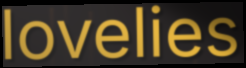
lovelies